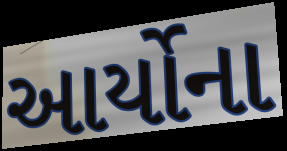
આર્યોના